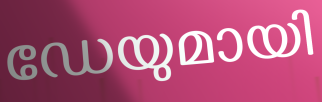
ഡേയുമായി